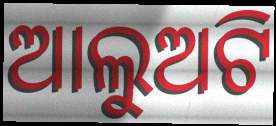
ଆଲୁଅଟି